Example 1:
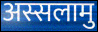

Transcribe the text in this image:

अस्सलामु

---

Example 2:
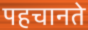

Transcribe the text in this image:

पहचानते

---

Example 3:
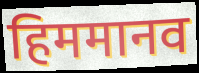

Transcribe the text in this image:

हिममानव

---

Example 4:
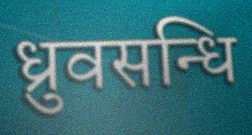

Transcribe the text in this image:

ध्रुवसन्धि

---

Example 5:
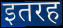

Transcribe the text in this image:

इतरह